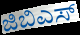
ಜಿಬಿಎಸ್